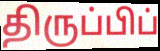
திருப்பிப்